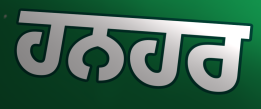
ਹਨਹਰ